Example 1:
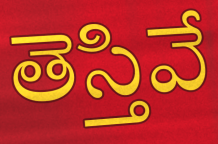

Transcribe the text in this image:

తెస్తివే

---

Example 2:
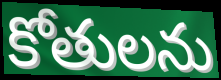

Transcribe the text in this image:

కోతులను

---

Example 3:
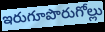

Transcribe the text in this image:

ఇరుగూపొరుగోల్లు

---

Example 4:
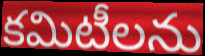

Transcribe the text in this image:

కమిటీలను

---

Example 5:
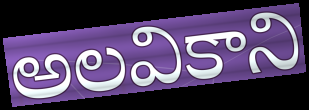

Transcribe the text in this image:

అలవికాని